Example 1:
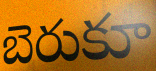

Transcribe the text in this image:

బెరుకూ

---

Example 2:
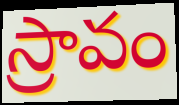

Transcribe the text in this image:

స్రావం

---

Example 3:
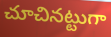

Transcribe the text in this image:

చూచినట్టుగా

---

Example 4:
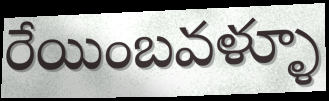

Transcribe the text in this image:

రేయింబవళ్ళూ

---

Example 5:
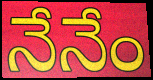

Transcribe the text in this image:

నేనేం